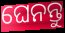
ଘେନନ୍ତୁ